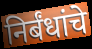
निर्बंधांचे